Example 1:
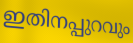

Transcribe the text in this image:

ഇതിനപ്പുറവും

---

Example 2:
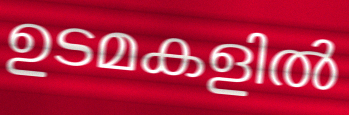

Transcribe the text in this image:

ഉടമകളിൽ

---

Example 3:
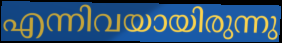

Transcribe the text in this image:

എന്നിവയായിരുന്നു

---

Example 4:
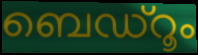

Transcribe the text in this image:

ബെഡ്റൂം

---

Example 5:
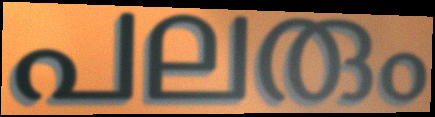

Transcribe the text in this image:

പലരും